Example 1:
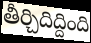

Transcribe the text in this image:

తీర్చిదిద్దింది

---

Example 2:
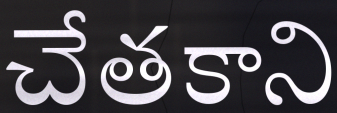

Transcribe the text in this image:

చేతకాని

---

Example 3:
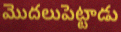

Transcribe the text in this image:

మొదలుపెట్టాడు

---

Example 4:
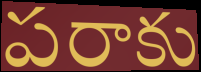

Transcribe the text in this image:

పరాకు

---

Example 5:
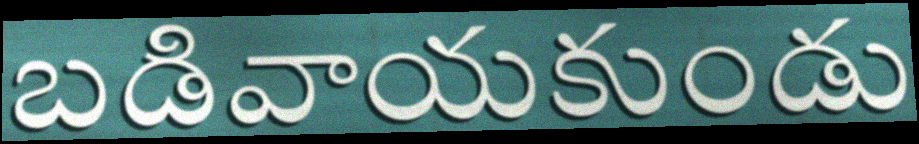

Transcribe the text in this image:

బడివాయకుండు